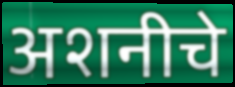
अशनीचे